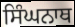
ਸਿੰਘਨਾਥ